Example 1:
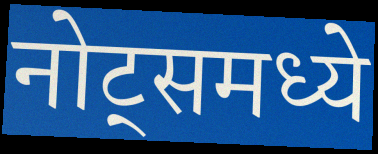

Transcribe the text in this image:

नोट्समध्ये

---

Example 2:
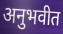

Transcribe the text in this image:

अनुभवीत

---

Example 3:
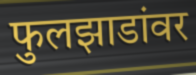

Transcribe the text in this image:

फुलझाडांवर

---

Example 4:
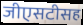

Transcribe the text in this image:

जीएसटीसह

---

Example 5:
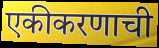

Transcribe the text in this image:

एकीकरणाची